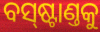
ବସ୍‌ଷ୍ଟାଣ୍ତକୁ